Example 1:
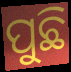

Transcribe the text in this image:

ପୁଛି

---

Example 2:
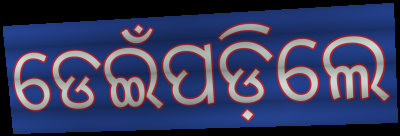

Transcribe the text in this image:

ଡେଇଁପଡ଼ିଲେ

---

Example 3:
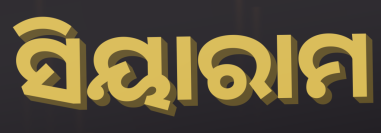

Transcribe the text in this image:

ସିୟାରାମ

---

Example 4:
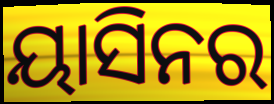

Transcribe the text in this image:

ୟାସିନର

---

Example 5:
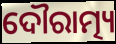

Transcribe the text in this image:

ଦୌରାତ୍ମ୍ୟ